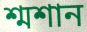
শ্মশান